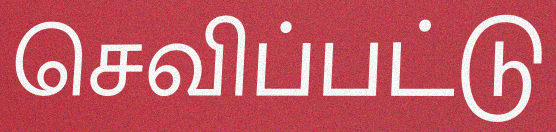
செவிப்பட்டு